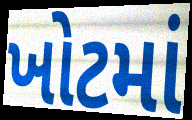
ખોટમાં